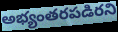
అభ్యంతరపడిరని